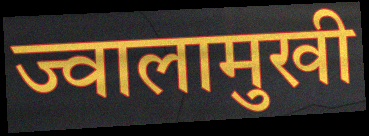
ज्‍वालामुखी